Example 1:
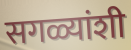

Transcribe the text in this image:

सगळ्यांशी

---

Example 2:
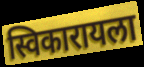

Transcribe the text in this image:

स्विकारायला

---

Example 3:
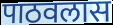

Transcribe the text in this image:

पाठवलास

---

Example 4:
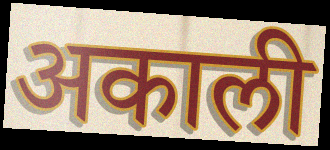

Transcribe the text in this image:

अकाली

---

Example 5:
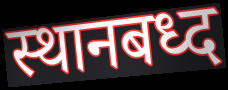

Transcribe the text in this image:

स्थानबध्द